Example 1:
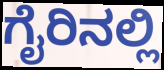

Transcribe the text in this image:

ಗೈರಿನಲ್ಲಿ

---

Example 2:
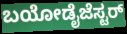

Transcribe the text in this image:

ಬಯೋಡೈಜೆಸ್ಟರ್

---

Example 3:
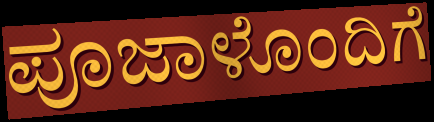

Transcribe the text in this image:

ಪೂಜಾಳೊಂದಿಗೆ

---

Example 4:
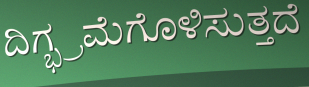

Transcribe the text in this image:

ದಿಗ್ಭ್ರಮೆಗೊಳಿಸುತ್ತದೆ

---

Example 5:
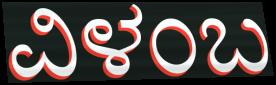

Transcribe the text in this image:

ವಿಳಂಬ